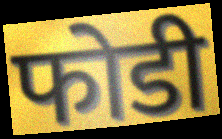
फोडी